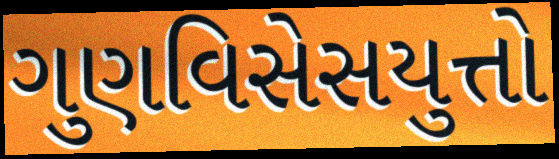
ગુણવિસેસયુત્તો